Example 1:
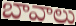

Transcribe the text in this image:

బావాలు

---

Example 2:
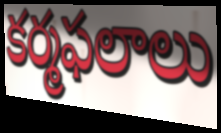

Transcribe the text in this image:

కర్మఫలాలు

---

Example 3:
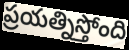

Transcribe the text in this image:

ప్రయత్నిస్తోంది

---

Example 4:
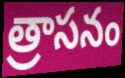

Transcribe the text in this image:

త్రాసనం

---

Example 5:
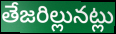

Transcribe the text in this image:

తేజరిల్లునట్లు